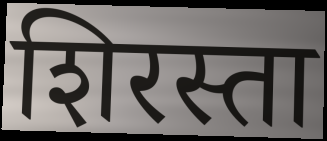
शिरस्ता